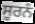
ਸੂਰਨੰ